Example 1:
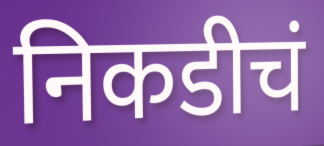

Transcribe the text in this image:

निकडीचं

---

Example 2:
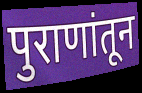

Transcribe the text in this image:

पुराणांतून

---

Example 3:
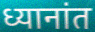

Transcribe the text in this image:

ध्यानांत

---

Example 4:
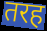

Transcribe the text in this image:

तरह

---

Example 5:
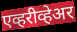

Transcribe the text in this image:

एव्हरीव्हेअर